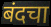
बंदचा